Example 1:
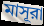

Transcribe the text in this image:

মাসূরা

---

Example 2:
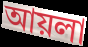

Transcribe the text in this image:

আয়লা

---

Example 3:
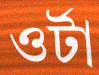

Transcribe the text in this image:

ওর্টা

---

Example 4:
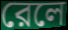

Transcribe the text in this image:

রেলে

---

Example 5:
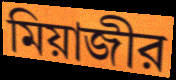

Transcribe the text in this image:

মিয়াজীর